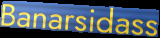
Banarsidass